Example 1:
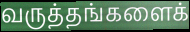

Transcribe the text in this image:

வருத்தங்களைக்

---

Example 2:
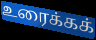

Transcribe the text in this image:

உரைக்கக்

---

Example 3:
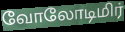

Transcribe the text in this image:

வோலோடிமிர்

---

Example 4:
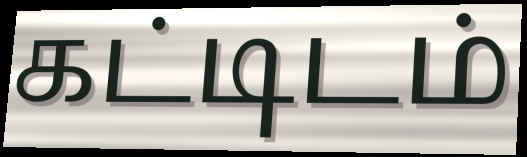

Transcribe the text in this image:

கட்டிடம்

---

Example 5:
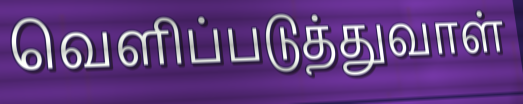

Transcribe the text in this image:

வெளிப்படுத்துவாள்